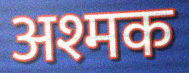
अश्मक